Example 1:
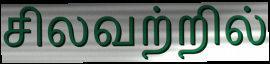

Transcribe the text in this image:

சிலவற்றில்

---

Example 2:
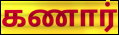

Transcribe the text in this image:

கணார்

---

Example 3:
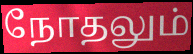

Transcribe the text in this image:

நோதலும்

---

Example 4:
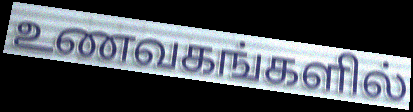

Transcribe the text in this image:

உணவகங்களில்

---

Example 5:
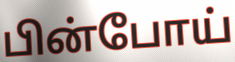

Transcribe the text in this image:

பின்போய்